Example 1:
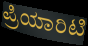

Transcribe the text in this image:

ಪ್ರಿಯಾರಿಟಿ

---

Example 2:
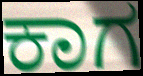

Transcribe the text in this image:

ಕಾಗ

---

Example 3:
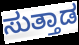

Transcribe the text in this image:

ಸುತ್ತಾಡ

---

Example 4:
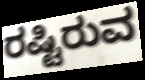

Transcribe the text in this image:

ರಷ್ಟಿರುವ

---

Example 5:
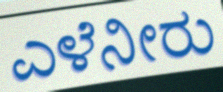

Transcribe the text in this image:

ಎಳೆನೀರು